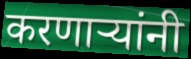
करणार्‍यांनी